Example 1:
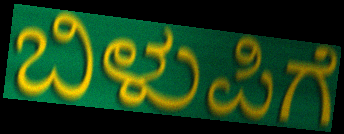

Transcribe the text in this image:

ಬಿಳುಪಿಗೆ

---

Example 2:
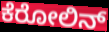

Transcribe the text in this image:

ಕೆರೋಲಿನ್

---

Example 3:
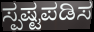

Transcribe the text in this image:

ಸ್ಪಷ್ಟಪಡಿಸ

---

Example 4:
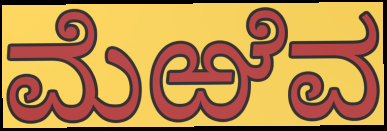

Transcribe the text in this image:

ಮೆಱೆವ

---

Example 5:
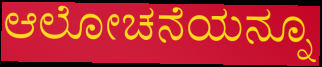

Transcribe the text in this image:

ಆಲೋಚನೆಯನ್ನೂ